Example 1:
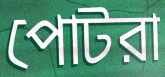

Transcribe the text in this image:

পোটরা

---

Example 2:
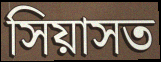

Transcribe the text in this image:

সিয়াসত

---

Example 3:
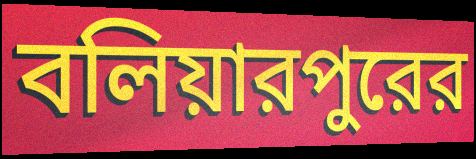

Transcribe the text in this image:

বলিয়ারপুরের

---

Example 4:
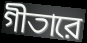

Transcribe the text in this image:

গীতারে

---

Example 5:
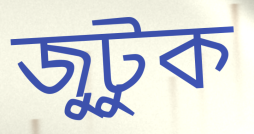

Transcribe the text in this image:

জুটুক